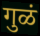
गुळं